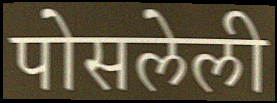
पोसलेली